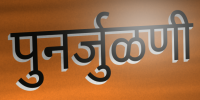
पुनर्जुळणी